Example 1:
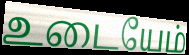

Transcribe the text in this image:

உடையேம்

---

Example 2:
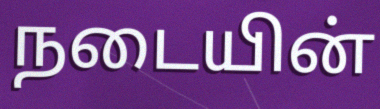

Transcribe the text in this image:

நடையின்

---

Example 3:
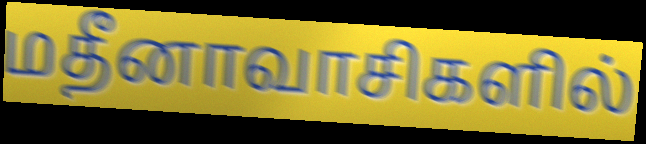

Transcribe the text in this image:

மதீனாவாசிகளில்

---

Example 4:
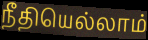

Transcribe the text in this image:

நீதியெல்லாம்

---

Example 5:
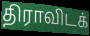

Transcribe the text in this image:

திராவிடக்